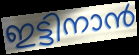
ഇട്ടിനാൻ